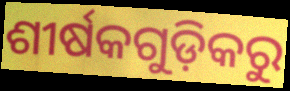
ଶୀର୍ଷକଗୁଡ଼ିକରୁ